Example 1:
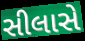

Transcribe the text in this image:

સીલાસે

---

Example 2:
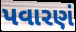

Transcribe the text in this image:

પવારણં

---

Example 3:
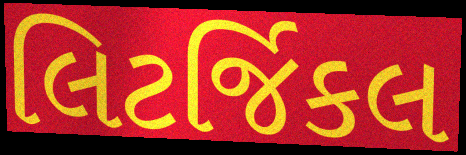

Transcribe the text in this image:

લિટર્જિકલ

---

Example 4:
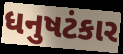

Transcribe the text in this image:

ધનુષટંકાર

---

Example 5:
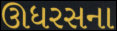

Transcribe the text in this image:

ઊધરસના